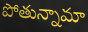
పోతున్నామా